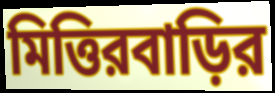
মিত্তিরবাড়ির